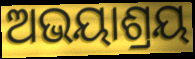
ଅଭୟାଶ୍ରୟ